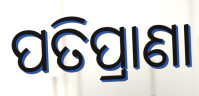
ପତିପ୍ରାଣା